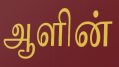
ஆளின்